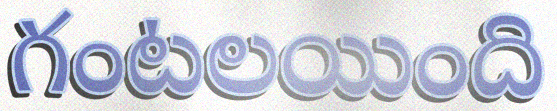
గంటలయింది